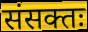
संसक्तः